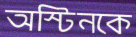
অস্টিনকে